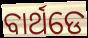
ବାର୍ଥଡେ